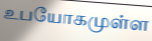
உபயோகமுள்ள